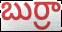
బుర్రా